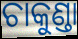
ଚାକୁଣ୍ଡା